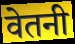
वेतनी